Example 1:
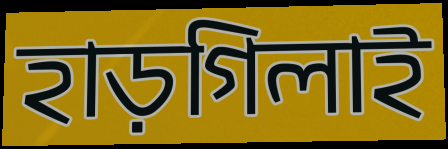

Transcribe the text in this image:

হাড়গিলাই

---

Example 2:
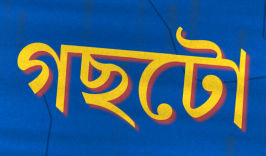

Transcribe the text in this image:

গছটো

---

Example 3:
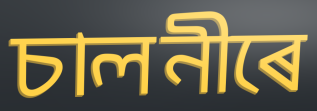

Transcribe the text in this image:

চালনীৰে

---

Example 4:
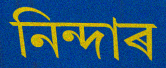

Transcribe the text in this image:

নিন্দাৰ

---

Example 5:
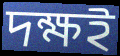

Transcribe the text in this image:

দক্ষই